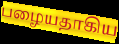
பழையதாகிய